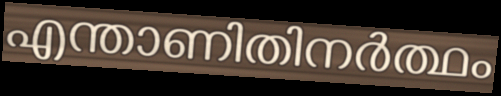
എന്താണിതിനർത്ഥം